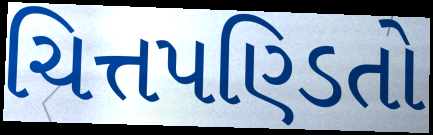
ચિત્તપણ્ડિતો